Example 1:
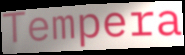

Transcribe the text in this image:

Tempera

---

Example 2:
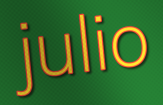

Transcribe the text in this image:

julio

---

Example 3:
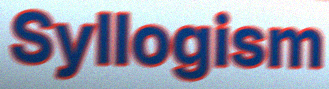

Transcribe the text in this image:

Syllogism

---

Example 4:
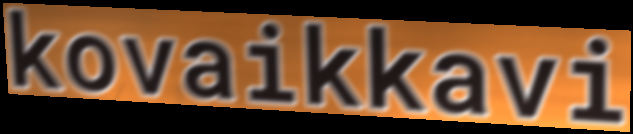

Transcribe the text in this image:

kovaikkavi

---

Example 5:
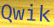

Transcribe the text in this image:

Qwik